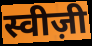
स्वीज़ी